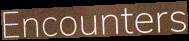
Encounters